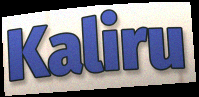
Kaliru